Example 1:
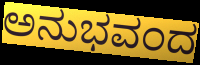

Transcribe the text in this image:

ಅನುಭವಂದ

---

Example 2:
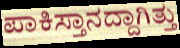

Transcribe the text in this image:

ಪಾಕಿಸ್ತಾನದ್ದಾಗಿತ್ತು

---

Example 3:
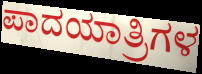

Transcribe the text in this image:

ಪಾದಯಾತ್ರಿಗಳ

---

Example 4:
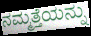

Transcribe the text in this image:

ನಮ್ಮತ್ತೆಯನ್ನು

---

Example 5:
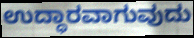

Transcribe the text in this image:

ಉದ್ಧಾರವಾಗುವುದು